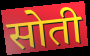
सोती